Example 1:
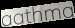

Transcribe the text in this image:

aathma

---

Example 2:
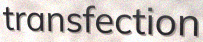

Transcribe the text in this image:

transfection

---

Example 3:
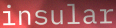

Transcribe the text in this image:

insular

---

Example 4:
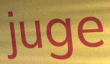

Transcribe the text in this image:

juge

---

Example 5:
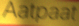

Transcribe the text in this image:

Aatpaat